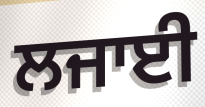
ਲਜਾਈ